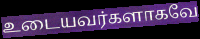
உடையவர்களாகவே